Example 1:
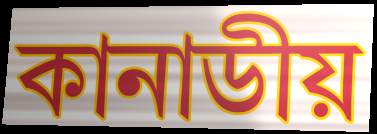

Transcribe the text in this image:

কানাডীয়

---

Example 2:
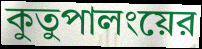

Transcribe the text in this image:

কুতুপালংয়ের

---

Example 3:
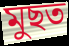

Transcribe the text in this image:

মুছত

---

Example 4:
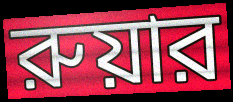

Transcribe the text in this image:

রুয়ার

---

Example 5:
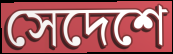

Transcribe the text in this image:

সেদেশে